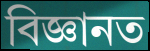
বিজ্ঞানত